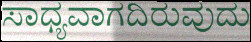
ಸಾಧ್ಯವಾಗದಿರುವುದು